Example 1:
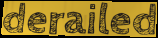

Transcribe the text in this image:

derailed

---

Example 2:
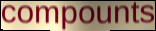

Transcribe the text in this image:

compounts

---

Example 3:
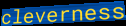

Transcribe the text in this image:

cleverness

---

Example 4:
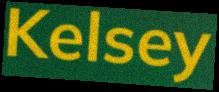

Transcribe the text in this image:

Kelsey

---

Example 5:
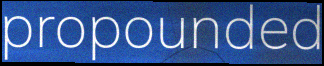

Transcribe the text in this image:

propounded